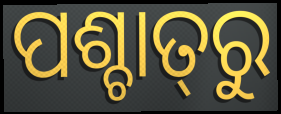
ପଶ୍ଚାତ୍‌ରୁ